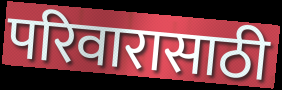
परिवारासाठी